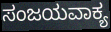
ಸಂಜಯವಾಕ್ಯ